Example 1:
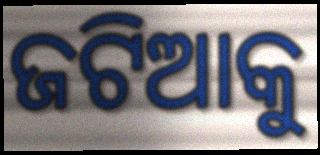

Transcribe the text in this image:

ଜଟିଆକୁ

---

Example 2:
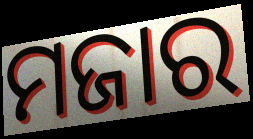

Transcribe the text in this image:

ମଜାର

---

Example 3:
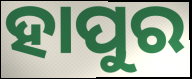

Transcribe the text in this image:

ହାପୁର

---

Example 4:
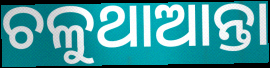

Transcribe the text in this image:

ଚଳୁଥାଆନ୍ତା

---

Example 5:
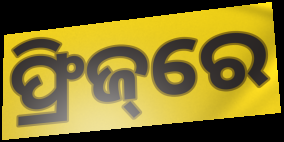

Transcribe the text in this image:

ଫ୍ରିଜ୍‌ରେ